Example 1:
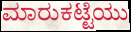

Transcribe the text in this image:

ಮಾರುಕಟ್ಟೆಯು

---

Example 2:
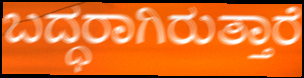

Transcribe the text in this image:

ಬದ್ಧರಾಗಿರುತ್ತಾರೆ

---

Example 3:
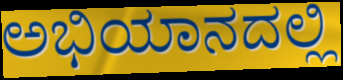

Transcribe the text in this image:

ಅಭಿಯಾನದಲ್ಲಿ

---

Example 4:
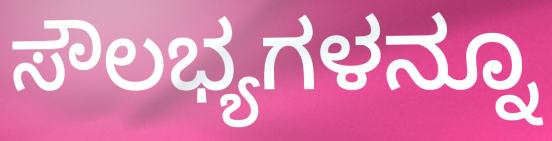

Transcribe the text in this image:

ಸೌಲಭ್ಯಗಳನ್ನೂ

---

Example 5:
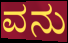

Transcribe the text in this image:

ವನು